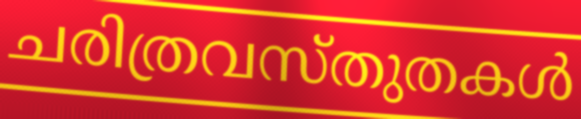
ചരിത്രവസ്തുതകൾ